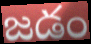
జడం